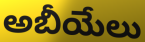
అబీయేలు